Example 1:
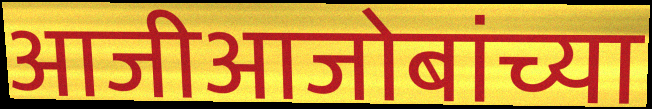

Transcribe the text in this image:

आजीआजोबांच्या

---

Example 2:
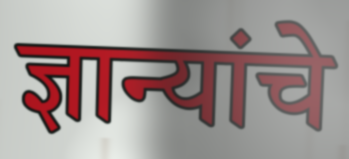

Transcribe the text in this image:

ज्ञान्यांचे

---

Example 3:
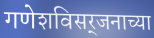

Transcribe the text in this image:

गणेशविसर्जनाच्या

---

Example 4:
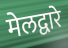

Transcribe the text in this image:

मेलद्वारे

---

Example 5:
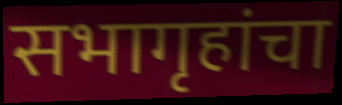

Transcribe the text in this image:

सभागृहांचा